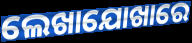
ଲେଖାଯୋଖାରେ